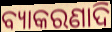
ବ୍ୟାକରଣାଦି